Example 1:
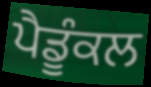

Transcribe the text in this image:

ਪੈਡੂੰਕਲ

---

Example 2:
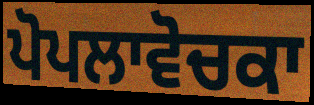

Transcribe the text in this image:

ਪੋਪਲਾਵੋਚਕਾ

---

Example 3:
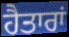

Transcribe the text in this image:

ਹੈਤਾਰਾਂ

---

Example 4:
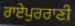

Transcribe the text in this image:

ਰਾਏਪੁਰਰਾਣੀ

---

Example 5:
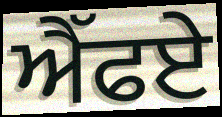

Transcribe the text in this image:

ਐੱਫਏ